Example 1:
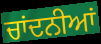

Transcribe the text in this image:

ਚਾਂਦਨੀਆਂ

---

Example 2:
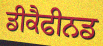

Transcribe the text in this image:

ਡੀਕੈਫੀਨਡ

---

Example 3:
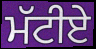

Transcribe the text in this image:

ਮੱਟੀਏ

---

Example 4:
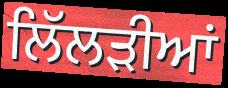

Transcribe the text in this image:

ਲਿੱਲੜੀਆਂ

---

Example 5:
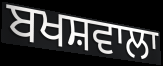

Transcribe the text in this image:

ਬਖਸ਼ਵਾਲਾ